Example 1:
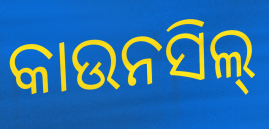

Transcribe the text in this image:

କାଉନସିଲ୍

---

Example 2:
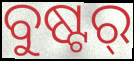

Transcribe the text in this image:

ବୁଷ୍ଟର୍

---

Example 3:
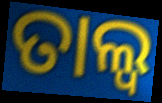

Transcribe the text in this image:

ତାଲ୍ୱ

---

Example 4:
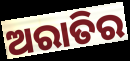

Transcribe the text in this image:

ଅରାତିର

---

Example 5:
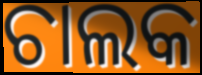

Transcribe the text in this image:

ଚାଲକ